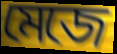
মেজে